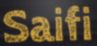
Saifi